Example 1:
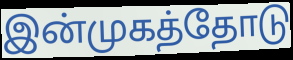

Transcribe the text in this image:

இன்முகத்தோடு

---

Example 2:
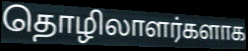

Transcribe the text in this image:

தொழிலாளர்களாக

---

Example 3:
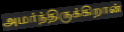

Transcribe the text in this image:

அமர்ந்திருக்கிறான்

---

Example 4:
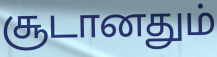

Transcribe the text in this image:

சூடானதும்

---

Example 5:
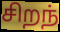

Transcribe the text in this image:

சிறந்